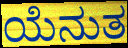
ಯೆನುತ